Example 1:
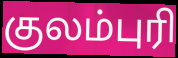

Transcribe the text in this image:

குலம்புரி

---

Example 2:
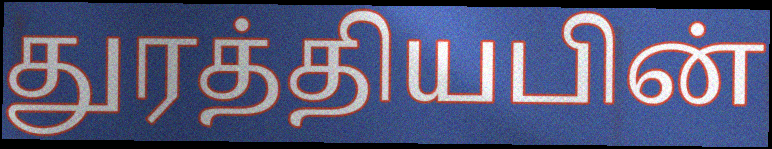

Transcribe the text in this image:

துரத்தியபின்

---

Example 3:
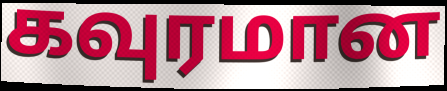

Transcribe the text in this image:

கவுரமான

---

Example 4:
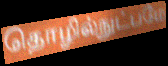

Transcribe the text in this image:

தொழில்நுட்பமே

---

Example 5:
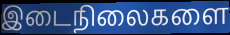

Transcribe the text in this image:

இடைநிலைகளை